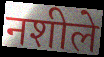
नशीले